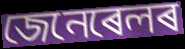
জেনেৰেলৰ